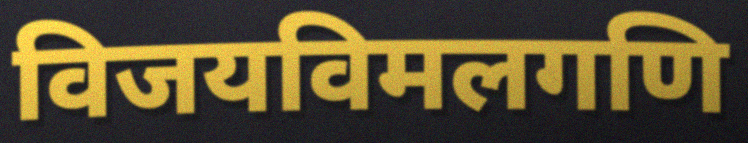
विजयविमलगणि